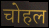
चोहल